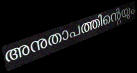
അനുതാപത്തിന്റെയും